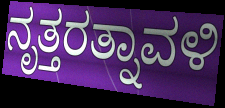
ನೃತ್ತರತ್ನಾವಳಿ